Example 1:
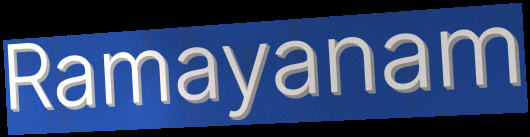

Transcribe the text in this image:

Ramayanam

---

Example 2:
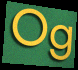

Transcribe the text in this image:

Og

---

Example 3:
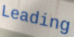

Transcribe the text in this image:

Leading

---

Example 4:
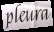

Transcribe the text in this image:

pleura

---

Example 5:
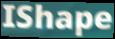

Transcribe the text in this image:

IShape